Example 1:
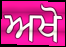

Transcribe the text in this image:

ਅਖੋ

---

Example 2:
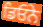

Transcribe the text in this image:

ਡਿਓਨੇ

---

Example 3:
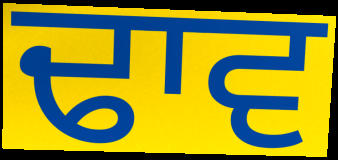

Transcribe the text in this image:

ਢਾਵ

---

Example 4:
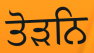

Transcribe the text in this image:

ਤੋੜਨਿ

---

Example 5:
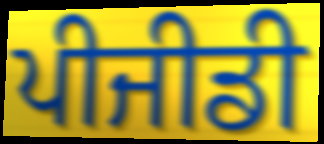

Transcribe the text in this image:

ਪੀਜੀਡੀ